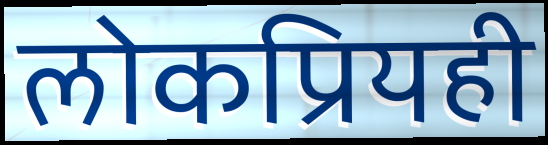
लोकप्रियही